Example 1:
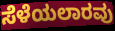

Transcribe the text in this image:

ಸೆಳೆಯಲಾರವು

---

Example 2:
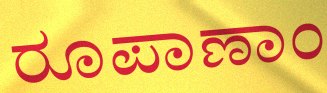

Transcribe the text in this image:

ರೂಪಾಣಾಂ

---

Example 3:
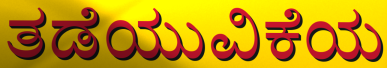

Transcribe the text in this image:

ತಡೆಯುವಿಕೆಯ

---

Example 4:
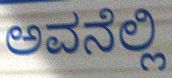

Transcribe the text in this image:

ಅವನೆಲ್ಲಿ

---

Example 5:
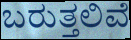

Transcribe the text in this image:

ಬರುತ್ತಲಿವೆ